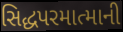
સિદ્ધપરમાત્માની